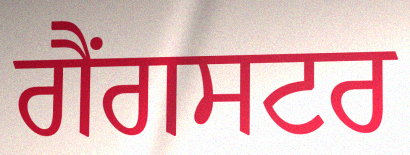
ਗੈਂਗਸਟਰ